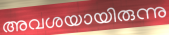
അവശയായിരുന്നു